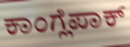
ಕಾಂಗ್ಲೆಪಾಕ್